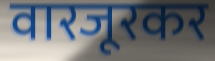
वारजूरकर